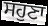
ਸਹੁਣਾ